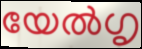
യേൽഗൃ